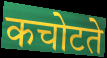
कचोटते